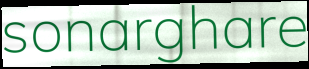
sonarghare